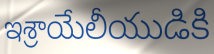
ఇశ్రాయేలీయుడికి